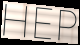
HEP